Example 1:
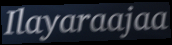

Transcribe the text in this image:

Ilayaraajaa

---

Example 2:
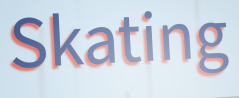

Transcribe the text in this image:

Skating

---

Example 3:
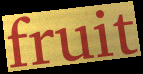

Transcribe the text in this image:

fruit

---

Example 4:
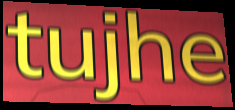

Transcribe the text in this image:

tujhe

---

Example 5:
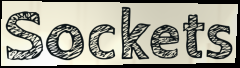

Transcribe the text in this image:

Sockets